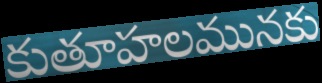
కుతూహలమునకు